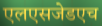
एलएसजेडएच